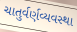
ચાતુર્વર્ણવ્યવસ્થા